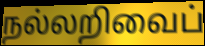
நல்லறிவைப்